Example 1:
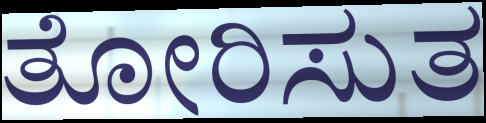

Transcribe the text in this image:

ತೋರಿಸುತ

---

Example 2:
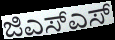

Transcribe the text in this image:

ಜಿಎಸ್ಎಸ್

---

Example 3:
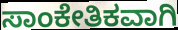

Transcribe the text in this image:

ಸಾಂಕೇತಿಕವಾಗಿ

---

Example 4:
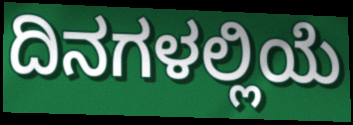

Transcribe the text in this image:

ದಿನಗಳಲ್ಲಿಯೆ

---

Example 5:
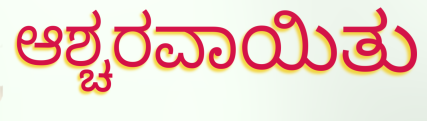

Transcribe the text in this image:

ಆಶ್ಚರವಾಯಿತು